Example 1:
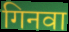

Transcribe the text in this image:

गिनवा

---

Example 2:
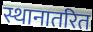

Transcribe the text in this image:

स्थानातरित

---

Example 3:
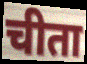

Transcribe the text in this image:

चीता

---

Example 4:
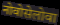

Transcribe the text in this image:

नोवोसेलोवा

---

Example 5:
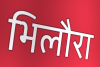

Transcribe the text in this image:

भिलौरा